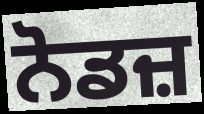
ਨੋਡਜ਼